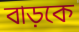
বাড়কে